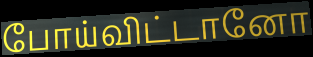
போய்விட்டானோ